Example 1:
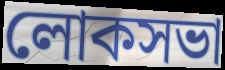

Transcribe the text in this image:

লোকসভা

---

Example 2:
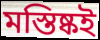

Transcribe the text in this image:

মস্তিষ্কই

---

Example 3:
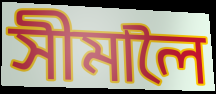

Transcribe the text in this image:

সীমালৈ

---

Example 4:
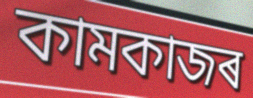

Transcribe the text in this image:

কামকাজৰ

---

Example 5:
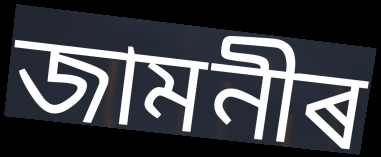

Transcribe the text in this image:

জামনীৰ